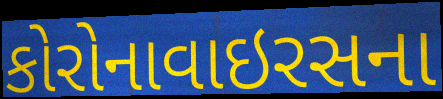
કોરોનાવાઇરસના